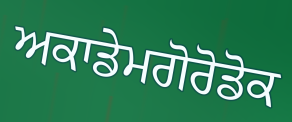
ਅਕਾਡੇਮਗੋਰੋਡੋਕ